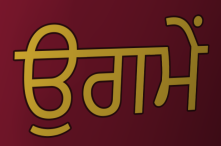
ਉਗਮੇਂ